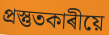
প্ৰস্তুতকাৰীয়ে